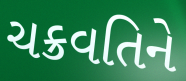
ચક્રવતિને